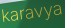
karavya